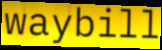
waybill